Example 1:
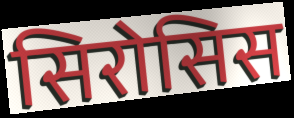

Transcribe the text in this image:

सिरोसिस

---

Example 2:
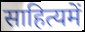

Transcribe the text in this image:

साहित्यमें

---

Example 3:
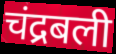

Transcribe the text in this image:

चंद्रबली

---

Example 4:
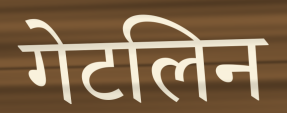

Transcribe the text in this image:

गेटलिन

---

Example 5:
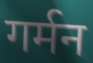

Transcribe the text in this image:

गर्मन